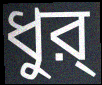
ধুর্